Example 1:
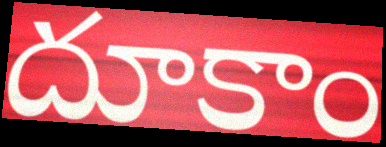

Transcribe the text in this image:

దూకాం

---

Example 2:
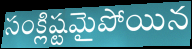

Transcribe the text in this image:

సంక్లిష్టమైపోయిన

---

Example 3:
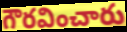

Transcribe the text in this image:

గౌరవించారు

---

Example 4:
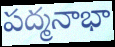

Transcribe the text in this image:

పద్మనాభా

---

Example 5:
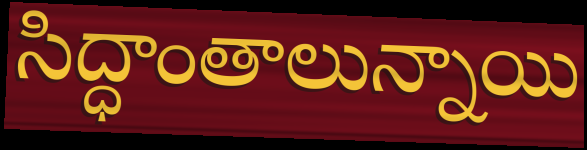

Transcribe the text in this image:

సిద్ధాంతాలున్నాయి